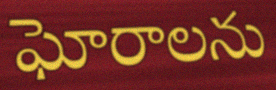
ఘోరాలను